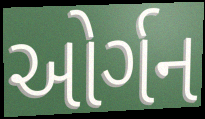
ઓર્ગન